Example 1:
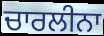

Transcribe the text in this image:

ਚਾਰਲੀਨਾ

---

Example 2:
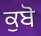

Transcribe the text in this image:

ਕੁਬੋ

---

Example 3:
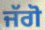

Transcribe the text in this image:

ਜੱਗੋ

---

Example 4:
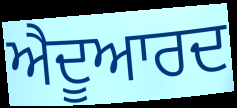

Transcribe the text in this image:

ਐਦੂਆਰਦ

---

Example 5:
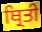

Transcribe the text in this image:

ਥ੍ਰਿਤੀ